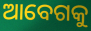
ଆବେଗକୁ